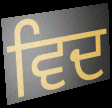
ਵਿਦ